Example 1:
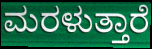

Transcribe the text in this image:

ಮರಳುತ್ತಾರೆ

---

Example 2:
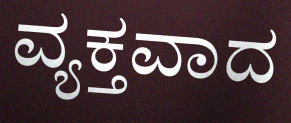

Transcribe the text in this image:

ವ್ಯಕ್ತವಾದ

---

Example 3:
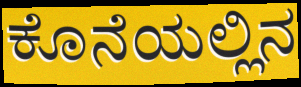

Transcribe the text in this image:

ಕೊನೆಯಲ್ಲಿನ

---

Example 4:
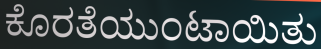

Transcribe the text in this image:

ಕೊರತೆಯುಂಟಾಯಿತು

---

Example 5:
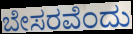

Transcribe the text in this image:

ಬೇಸರವೆಂದು